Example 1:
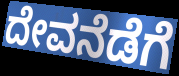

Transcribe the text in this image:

ದೇವನೆಡೆಗೆ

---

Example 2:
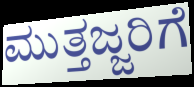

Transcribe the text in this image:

ಮುತ್ತಜ್ಜರಿಗೆ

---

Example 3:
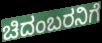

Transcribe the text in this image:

ಚಿದಂಬರನಿಗೆ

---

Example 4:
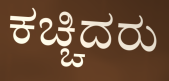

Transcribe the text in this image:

ಕಚ್ಚಿದರು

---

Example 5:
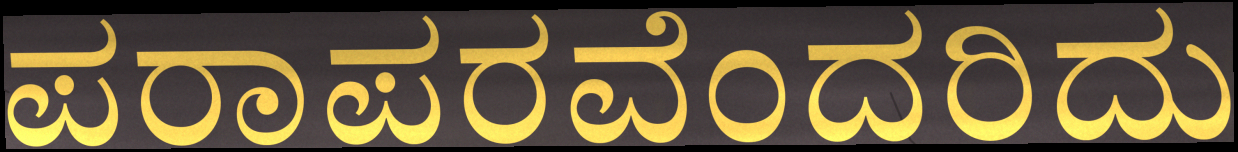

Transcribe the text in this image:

ಪರಾಪರವೆಂದರಿದು